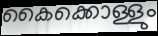
കൈക്കൊള്ളും